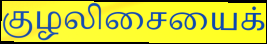
குழலிசையைக்